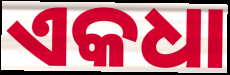
ଏକଧା